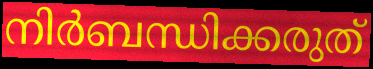
നിർബന്ധിക്കരുത്